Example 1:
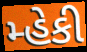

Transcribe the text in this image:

મ્હેકી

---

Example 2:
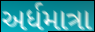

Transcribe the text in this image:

અર્ધમાત્રા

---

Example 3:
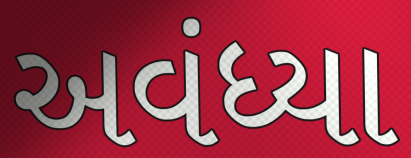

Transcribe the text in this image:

અવંધ્યા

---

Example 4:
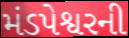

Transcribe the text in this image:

મંડપેશ્વરની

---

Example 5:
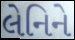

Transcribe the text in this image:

લેનિને